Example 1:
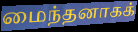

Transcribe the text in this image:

மைந்தனாகக்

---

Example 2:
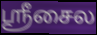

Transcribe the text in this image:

ஸ்ரீசைல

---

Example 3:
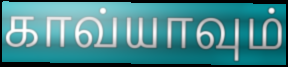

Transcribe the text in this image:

காவ்யாவும்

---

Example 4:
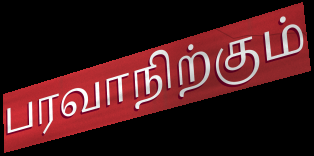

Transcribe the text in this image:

பரவாநிற்கும்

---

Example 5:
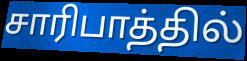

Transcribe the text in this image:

சாரிபாத்தில்